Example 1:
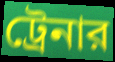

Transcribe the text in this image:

ট্রেনার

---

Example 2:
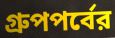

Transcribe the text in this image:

গ্রুপপর্বের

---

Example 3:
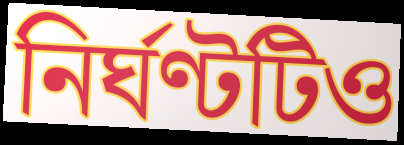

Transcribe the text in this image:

নির্ঘণ্টটিও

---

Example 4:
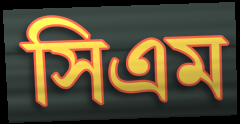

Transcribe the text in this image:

সিএম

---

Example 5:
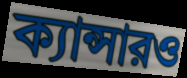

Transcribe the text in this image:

ক্যান্সারও